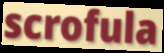
scrofula